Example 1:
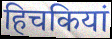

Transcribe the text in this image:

हिचकियां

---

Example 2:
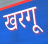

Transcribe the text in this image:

खरगू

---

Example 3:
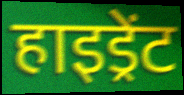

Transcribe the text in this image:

हाइड्रेंट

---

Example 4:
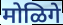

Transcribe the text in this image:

मोळिगे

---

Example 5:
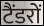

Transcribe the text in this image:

टैंडरों